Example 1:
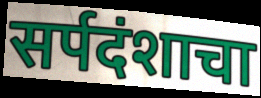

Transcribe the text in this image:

सर्पदंशाचा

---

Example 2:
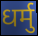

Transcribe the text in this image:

धर्मु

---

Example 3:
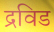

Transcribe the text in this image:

द्रविड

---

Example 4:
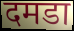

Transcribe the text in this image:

दमडा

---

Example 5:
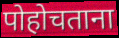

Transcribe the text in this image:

पोहोचताना